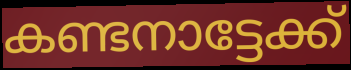
കണ്ടനാട്ടേക്ക്